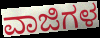
ವಾಜಿಗಳ